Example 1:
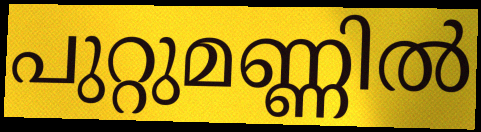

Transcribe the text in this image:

പുറ്റുമണ്ണിൽ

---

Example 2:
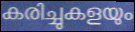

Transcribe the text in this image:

കരിച്ചുകളയും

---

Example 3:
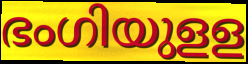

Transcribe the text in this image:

ഭംഗിയുളള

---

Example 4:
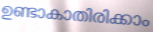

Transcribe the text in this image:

ഉണ്ടാകാതിരിക്കാം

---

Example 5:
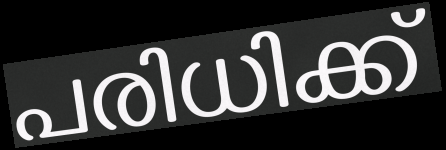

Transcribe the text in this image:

പരിധിക്ക്